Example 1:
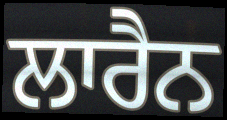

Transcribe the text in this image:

ਲਾਰੈਨ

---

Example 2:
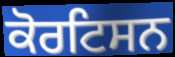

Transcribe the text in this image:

ਕੋਰਟਿਸਨ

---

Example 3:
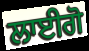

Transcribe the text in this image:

ਲਾਈਗੋ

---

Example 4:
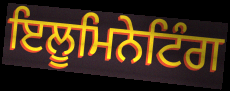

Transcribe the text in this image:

ਇਲੂਮਿਨੇਟਿੰਗ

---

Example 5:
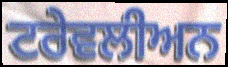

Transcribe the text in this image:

ਟਰੇਵਲੀਅਨ